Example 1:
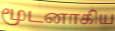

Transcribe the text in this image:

மூடனாகிய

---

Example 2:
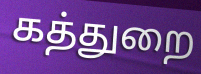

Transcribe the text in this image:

கத்துறை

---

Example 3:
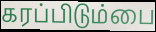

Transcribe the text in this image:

கரப்பிடும்பை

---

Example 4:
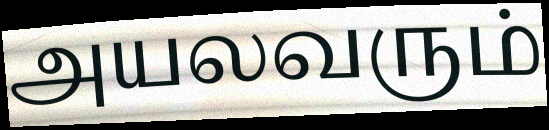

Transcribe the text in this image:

அயலவரும்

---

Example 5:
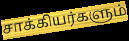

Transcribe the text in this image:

சாக்கியர்களும்